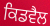
ਕਿਡਵੈਲ